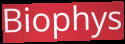
Biophys